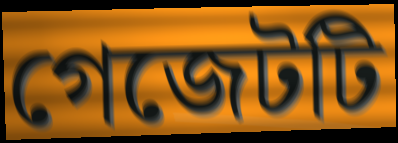
গেজেটটি